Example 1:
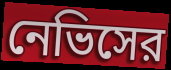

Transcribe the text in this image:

নেভিসের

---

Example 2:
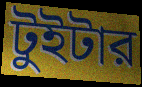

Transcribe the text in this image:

টুইটার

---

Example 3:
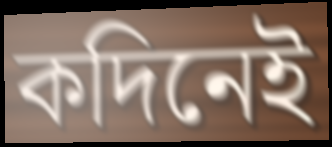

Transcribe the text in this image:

কদিনেই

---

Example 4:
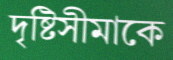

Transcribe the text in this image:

দৃষ্টিসীমাকে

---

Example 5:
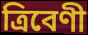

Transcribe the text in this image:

ত্রিবেণী